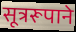
सूत्ररूपाने